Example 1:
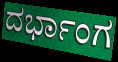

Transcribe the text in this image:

ದರ್ಭಾಂಗ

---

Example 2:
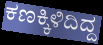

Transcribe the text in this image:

ಕಣಕ್ಕಿಳಿದಿದ್ದ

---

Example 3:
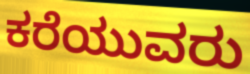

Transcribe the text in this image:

ಕರೆಯುವರು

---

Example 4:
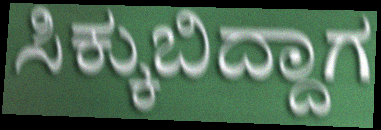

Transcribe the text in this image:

ಸಿಕ್ಕುಬಿದ್ದಾಗ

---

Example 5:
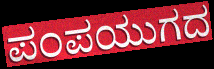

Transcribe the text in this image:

ಪಂಪಯುಗದ